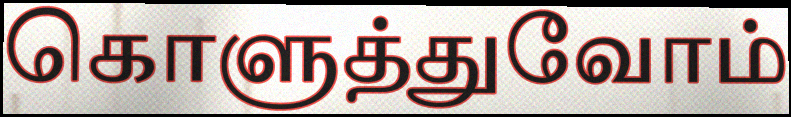
கொளுத்துவோம்